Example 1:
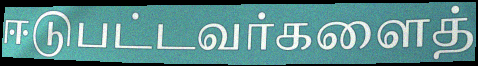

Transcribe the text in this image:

ஈடுபட்டவர்களைத்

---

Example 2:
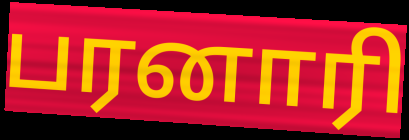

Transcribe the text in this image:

பரனாரி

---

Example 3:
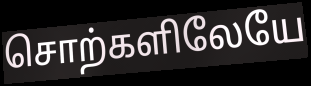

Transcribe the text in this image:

சொற்களிலேயே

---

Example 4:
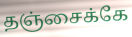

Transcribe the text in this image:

தஞ்சைக்கே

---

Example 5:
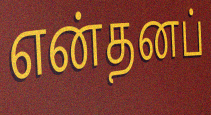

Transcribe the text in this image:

என்தனப்